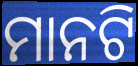
ମାନଟି